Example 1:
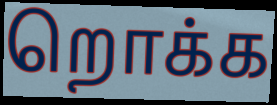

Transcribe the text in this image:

றொக்க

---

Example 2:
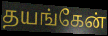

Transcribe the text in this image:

தயங்கேன்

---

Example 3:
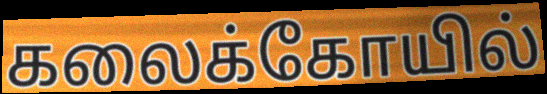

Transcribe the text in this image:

கலைக்கோயில்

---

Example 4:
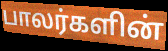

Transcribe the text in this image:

பாலர்களின்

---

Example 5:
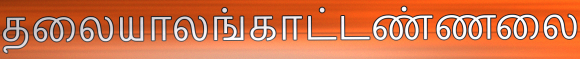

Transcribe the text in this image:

தலையாலங்காட்டண்ணலை